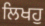
ਲਿਖਹੁ